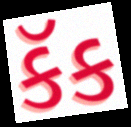
કૅક